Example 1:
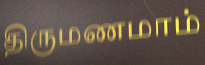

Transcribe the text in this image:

திருமணமாம்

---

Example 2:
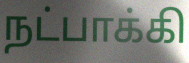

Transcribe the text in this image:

நட்பாக்கி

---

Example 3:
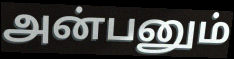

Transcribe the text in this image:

அன்பனும்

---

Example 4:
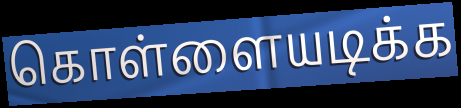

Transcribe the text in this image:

கொள்ளையடிக்க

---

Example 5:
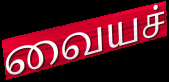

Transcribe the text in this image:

வையச்